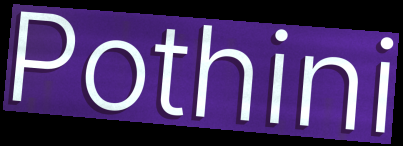
Pothini